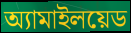
অ্যামাইলয়েড